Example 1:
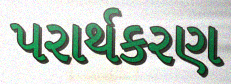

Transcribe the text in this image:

પરાર્થકરણ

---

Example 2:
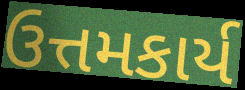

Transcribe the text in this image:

ઉત્તમકાર્ય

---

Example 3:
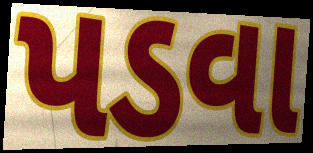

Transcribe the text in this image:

પડવા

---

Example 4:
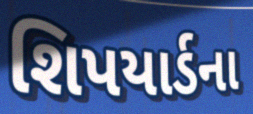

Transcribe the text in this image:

શિપયાર્ડના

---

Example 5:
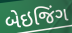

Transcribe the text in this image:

બેઇજિંગ